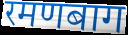
रमणबाग